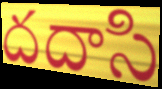
దదాసి